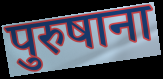
पुरुषाना